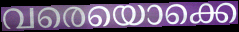
വരെയൊക്കെ